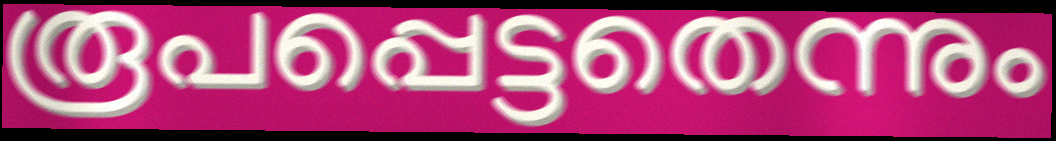
രൂപപ്പെട്ടതെന്നും